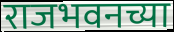
राजभवनच्या